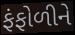
ફંફોળીને